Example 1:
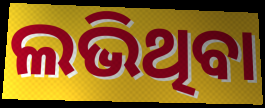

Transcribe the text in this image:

ଲଭିଥିବା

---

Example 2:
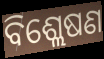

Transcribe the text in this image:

ବିଶ୍ଲେଷଣ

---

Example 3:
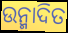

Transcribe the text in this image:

ଉନ୍ମାଦିତ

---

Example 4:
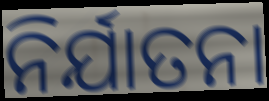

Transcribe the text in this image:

ନିର୍ଯାତନା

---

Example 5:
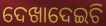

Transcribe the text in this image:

ଦେଖାଦେଇଚି